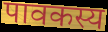
पावकस्य